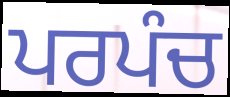
ਪਰਪੰਚ